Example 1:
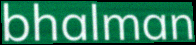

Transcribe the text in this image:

bhalman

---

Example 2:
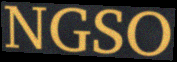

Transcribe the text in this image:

NGSO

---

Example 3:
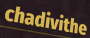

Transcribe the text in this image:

chadivithe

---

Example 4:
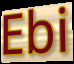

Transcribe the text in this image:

Ebi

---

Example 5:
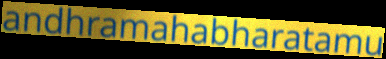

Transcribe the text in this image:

andhramahabharatamu